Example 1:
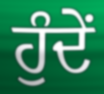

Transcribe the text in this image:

ਹੁੰਦੇਂ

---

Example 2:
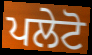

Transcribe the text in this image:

ਪਲੇਟੋ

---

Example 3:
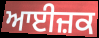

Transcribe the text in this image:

ਆਈਜ਼ਕ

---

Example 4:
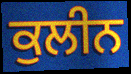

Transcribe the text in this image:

ਕੁਲੀਨ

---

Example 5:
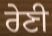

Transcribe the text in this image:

ਰੇਣੀ